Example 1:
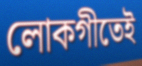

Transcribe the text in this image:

লোকগীতেই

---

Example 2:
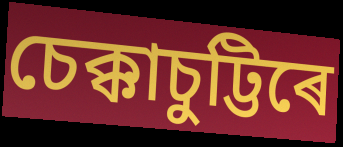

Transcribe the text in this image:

চেক্কাচুট্টিৰে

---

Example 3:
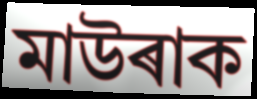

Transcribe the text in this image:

মাউৰাক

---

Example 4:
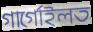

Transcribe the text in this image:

গাৰ্গোইলত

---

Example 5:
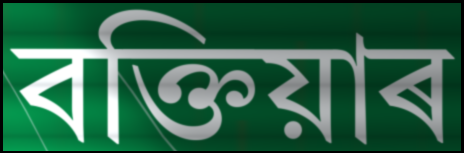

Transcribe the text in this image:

বক্তিয়াৰ